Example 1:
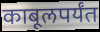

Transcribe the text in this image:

काबूलपर्यंत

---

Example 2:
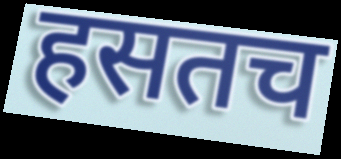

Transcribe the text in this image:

हसतच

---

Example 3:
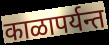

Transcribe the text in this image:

काळापर्यन्त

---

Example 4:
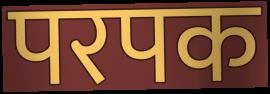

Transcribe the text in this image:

परपक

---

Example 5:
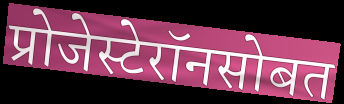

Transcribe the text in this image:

प्रोजेस्टेरॉनसोबत